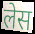
लेस